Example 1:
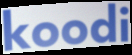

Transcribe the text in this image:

koodi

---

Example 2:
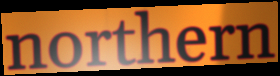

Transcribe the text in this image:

northern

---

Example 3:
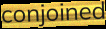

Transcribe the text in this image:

conjoined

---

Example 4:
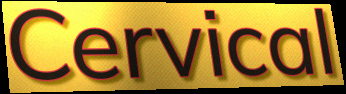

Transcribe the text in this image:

Cervical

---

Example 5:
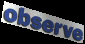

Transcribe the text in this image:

observe